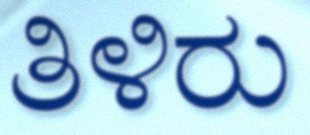
ತಿಳಿರು